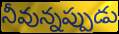
నీవున్నప్పుడు